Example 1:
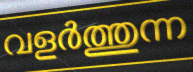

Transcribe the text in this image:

വളർത്തുന്ന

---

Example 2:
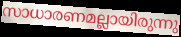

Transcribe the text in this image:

സാധാരണമല്ലായിരുന്നു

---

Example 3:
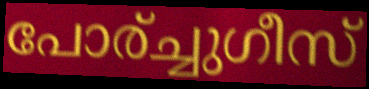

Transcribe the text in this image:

പോര്ച്ചുഗീസ്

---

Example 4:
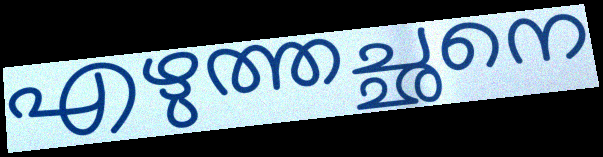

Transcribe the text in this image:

എഴുത്തച്ഛനെ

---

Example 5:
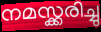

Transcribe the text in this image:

നമസ്ക്കരിച്ചു